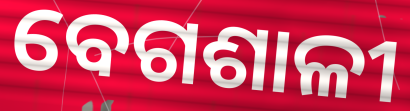
ବେଗଶାଳୀ